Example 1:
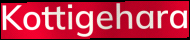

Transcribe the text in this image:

Kottigehara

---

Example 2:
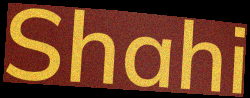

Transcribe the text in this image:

Shahi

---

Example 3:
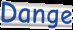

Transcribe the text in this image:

Dange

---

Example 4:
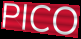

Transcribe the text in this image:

PICO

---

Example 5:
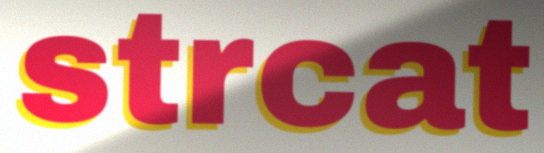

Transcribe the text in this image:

strcat